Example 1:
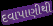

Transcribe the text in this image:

દવાપાણીથી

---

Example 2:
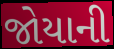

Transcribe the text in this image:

જોયાની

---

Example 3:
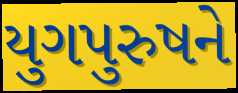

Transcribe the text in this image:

યુગપુરુષને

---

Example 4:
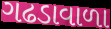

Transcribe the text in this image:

ગઢડાવાળા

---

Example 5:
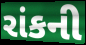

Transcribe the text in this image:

રાંકની